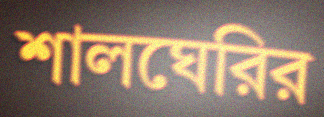
শালঘেরির